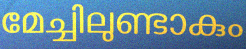
മേച്ചിലുണ്ടാകും